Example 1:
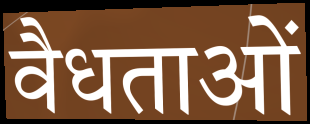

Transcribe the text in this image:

वैधताओं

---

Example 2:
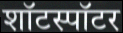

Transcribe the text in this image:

शॉटस्पॉटर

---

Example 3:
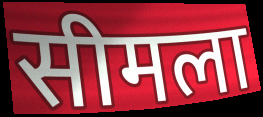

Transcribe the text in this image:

सीमला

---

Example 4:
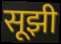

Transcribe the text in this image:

सूझी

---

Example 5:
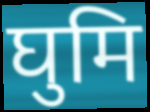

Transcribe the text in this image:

घुमि